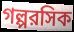
গল্পরসিক